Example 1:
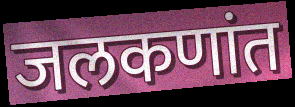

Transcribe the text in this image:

जलकणांत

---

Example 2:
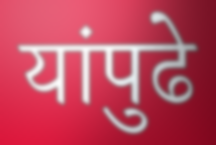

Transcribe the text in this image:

यांपुढे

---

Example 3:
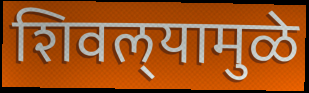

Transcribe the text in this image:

शिवल्यामुळे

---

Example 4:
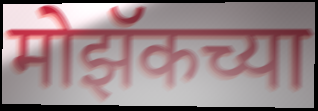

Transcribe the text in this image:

मोझॅकच्या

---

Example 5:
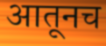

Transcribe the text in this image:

आतूनच